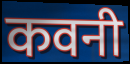
कवनी